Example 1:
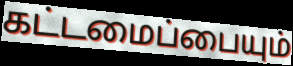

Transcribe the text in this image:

கட்டமைப்பையும்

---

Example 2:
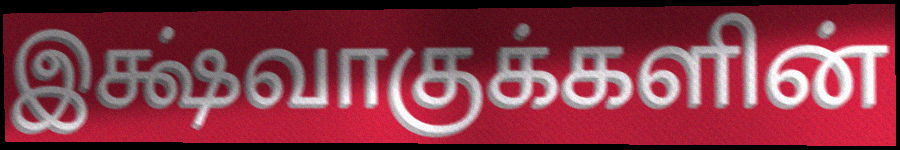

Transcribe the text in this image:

இக்ஷ்வாகுக்களின்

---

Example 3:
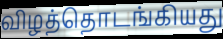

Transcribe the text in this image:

விழத்தொடங்கியது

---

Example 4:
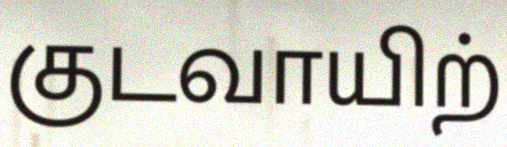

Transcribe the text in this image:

குடவாயிற்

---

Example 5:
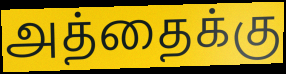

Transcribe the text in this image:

அத்தைக்கு